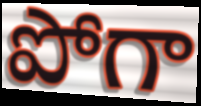
పోగా